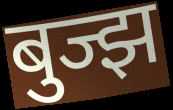
बुज्झ